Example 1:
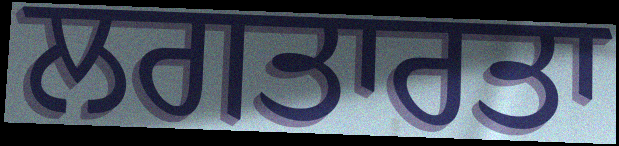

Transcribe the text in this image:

ਲਗਤਾਰਤਾ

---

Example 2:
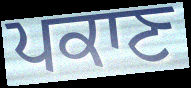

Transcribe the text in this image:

ਪਕਾਣ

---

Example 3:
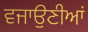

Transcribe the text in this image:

ਵਜਾਉਣੀਆਂ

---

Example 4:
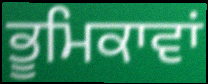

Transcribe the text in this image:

ਭੂਮਿਕਾਵਾਂ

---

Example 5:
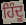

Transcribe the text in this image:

ਹਿੰਦੂ